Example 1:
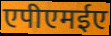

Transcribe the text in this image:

एपीएमईए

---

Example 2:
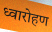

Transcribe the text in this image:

ध्वारोहण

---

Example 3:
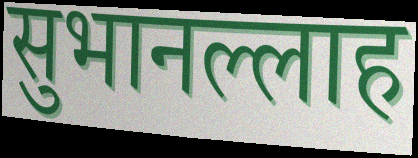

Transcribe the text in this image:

सुभानल्लाह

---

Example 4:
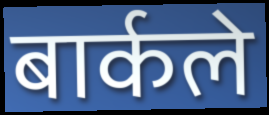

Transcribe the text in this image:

बार्कले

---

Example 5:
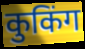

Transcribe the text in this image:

कुकिंग